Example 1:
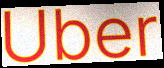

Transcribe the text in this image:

Uber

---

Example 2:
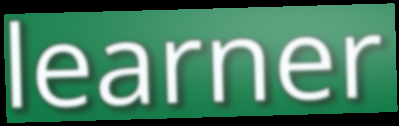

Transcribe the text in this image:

learner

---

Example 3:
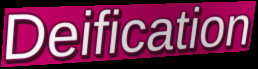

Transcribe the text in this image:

Deification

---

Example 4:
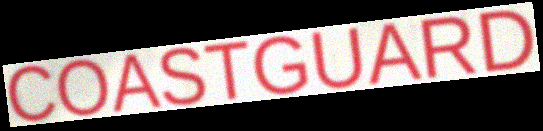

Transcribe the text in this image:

COASTGUARD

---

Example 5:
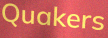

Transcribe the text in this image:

Quakers